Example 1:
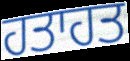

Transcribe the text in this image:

ਹਤਾਹਤ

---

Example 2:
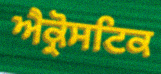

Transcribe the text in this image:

ਐਕ੍ਰੋਸਟਿਕ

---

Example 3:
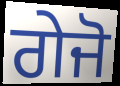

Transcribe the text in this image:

ਗੇਜੋ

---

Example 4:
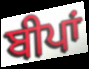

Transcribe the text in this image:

ਬੀਪਾਂ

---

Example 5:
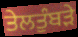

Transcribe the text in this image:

ਤੇਲਤੁੰਬੜੇ